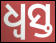
ଧ୍ବସ୍ତ